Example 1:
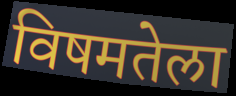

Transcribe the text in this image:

विषमतेला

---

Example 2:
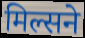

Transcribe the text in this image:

मिल्सने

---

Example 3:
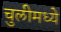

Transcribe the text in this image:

चुलीमध्ये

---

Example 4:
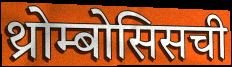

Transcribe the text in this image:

थ्रोम्बोसिसची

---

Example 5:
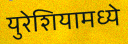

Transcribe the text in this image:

युरेशियामध्ये